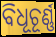
ବିଧୂଚୂର୍ଣ୍ଣ